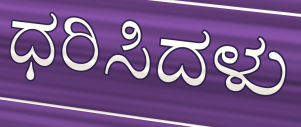
ಧರಿಸಿದಳು